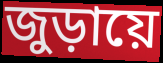
জুড়ায়ে